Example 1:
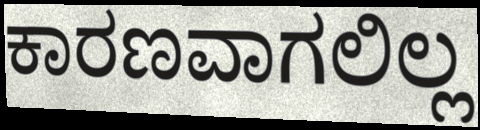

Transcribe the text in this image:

ಕಾರಣವಾಗಲಿಲ್ಲ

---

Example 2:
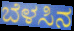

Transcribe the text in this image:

ಬೆಳಸಿನ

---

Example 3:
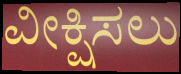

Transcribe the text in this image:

ವೀಕ್ಷಿಸಲು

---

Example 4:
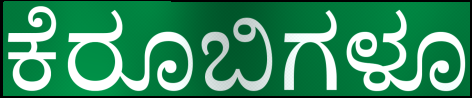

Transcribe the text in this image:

ಕೆರೂಬಿಗಳೂ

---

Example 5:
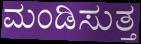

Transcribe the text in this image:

ಮಂಡಿಸುತ್ತ